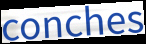
conches